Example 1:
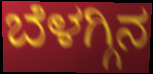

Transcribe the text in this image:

ಬೆಳಗ್ಗಿನ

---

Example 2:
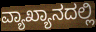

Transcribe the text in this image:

ವ್ಯಾಖ್ಯಾನದಲ್ಲಿ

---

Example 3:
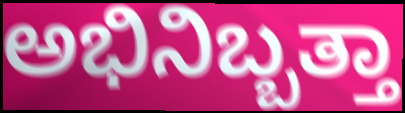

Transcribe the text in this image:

ಅಭಿನಿಬ್ಬತ್ತಾ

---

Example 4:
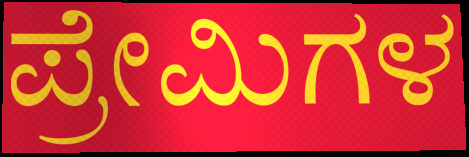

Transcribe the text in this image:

ಪ್ರೇಮಿಗಳ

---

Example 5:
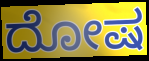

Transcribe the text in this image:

ದೋಷ